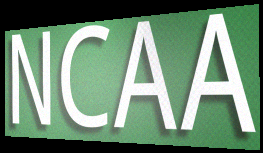
NCAA